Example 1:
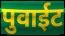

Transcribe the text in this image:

पुवाईट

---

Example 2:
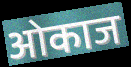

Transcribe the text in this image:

ओकाज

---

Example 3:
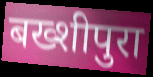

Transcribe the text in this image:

बख्शीपुरा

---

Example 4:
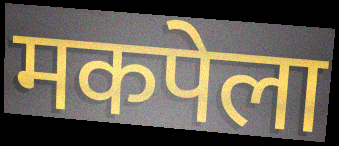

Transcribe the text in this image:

मकपेला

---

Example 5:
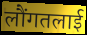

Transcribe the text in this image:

लौंगतलाई